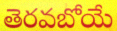
తెరవబోయే